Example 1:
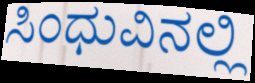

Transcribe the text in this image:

ಸಿಂಧುವಿನಲ್ಲಿ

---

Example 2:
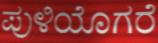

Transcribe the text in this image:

ಪುಳಿಯೊಗರೆ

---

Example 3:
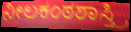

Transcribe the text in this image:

ನೀಲಕಂಠಶಾಸ್ತ್ರಿ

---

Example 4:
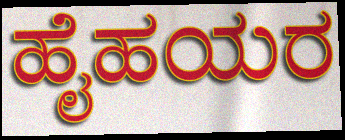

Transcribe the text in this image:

ಹೈಹಯರ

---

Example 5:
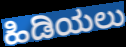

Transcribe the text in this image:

ಹಿಡಿಯಲು